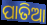
ପାତିଆ